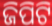
ଜିପିଟି